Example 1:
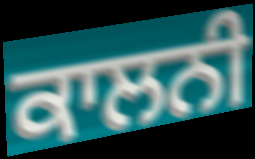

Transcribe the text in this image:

ਕਾਲਨੀ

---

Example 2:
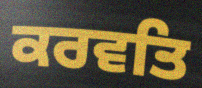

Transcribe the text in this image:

ਕਰਵਤਿ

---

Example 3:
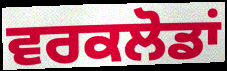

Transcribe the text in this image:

ਵਰਕਲੋਡਾਂ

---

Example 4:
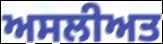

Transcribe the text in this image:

ਅਸਲੀਅਤ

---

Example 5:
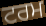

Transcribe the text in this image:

ਟਰਮ